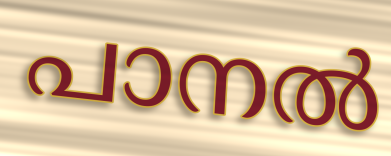
പാനൽ